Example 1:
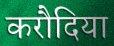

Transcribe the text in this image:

करौदिया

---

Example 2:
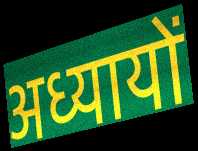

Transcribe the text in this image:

अध्यायों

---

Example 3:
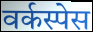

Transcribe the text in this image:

वर्कस्पेस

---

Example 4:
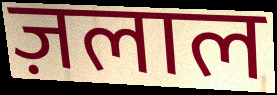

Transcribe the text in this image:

ज़लाल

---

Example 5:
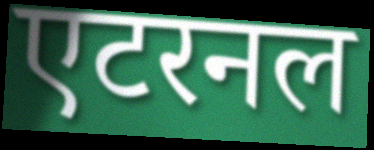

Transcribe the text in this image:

एटरनल